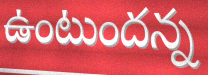
ఉంటుందన్న